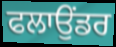
ਫਲਾਉਂਡਰ